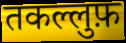
तकल्लुफ़